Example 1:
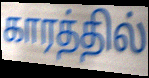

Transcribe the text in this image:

காரத்தில்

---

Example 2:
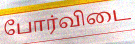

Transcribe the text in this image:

போர்விடை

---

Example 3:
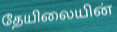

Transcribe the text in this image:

தேயிலையின்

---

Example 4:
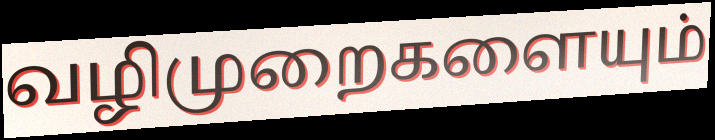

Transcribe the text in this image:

வழிமுறைகளையும்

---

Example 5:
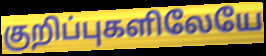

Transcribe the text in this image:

குறிப்புகளிலேயே